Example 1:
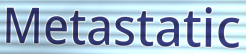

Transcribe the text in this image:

Metastatic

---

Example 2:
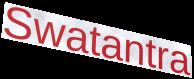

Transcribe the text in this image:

Swatantra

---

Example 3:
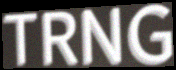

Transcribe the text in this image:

TRNG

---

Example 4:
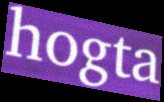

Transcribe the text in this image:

hogta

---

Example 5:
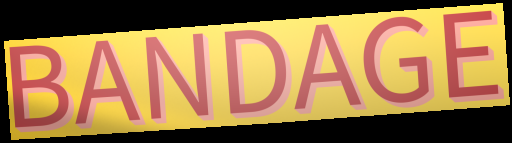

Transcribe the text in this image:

BANDAGE